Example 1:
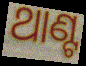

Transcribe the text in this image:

ଥାଣ୍ଟ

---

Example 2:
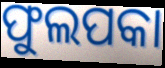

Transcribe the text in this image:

ଫୁଲପକା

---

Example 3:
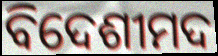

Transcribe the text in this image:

ବିଦେଶୀମଦ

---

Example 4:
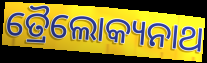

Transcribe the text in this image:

ତ୍ରୈଲୋକ୍ୟନାଥ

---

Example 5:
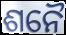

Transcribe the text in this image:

ଶନୈ